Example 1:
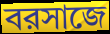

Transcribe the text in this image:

বরসাজে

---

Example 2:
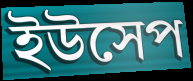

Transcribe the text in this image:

ইউসেপ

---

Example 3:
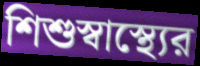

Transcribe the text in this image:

শিশুস্বাস্থ্যের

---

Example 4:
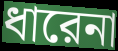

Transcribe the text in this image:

ধারেনা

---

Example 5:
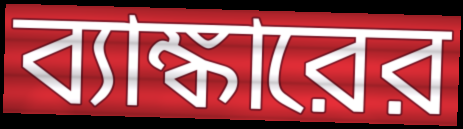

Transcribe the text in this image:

ব্যাঙ্কারের